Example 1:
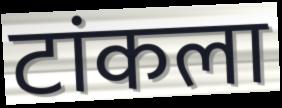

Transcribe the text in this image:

टांकला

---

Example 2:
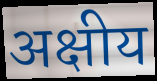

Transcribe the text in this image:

अक्षीय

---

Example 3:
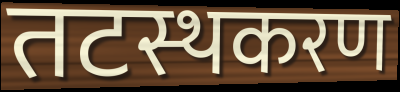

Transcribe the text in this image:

तटस्थकरण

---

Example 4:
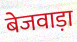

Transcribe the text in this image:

बेजवाड़ा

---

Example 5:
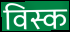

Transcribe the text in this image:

विस्क